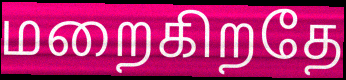
மறைகிறதே